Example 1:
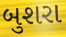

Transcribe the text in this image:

બુશરા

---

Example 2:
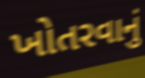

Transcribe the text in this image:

ખોતરવાનું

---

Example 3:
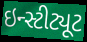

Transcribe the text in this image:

ઇન્સ્ટીટ્યૂટ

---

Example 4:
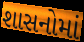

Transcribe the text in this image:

શાસનોમાં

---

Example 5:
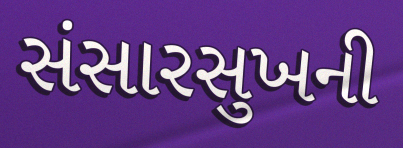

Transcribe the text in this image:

સંસારસુખની